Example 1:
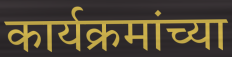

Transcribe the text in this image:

कार्यक्रमांच्या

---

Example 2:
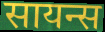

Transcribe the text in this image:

सायन्स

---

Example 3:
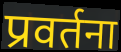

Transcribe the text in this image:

प्रवर्तना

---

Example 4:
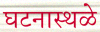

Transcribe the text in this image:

घटनास्थळे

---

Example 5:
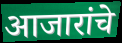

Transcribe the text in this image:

आजारांचे